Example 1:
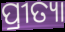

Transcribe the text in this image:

ପ୍ରୀତ୍ୟା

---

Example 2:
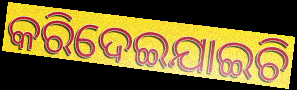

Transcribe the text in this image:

କରିଦେଇଯାଇଚି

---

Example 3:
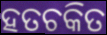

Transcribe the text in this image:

ହତଚକିତ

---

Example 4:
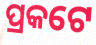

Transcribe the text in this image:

ପ୍ରକଟେ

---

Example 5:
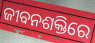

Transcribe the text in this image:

ଜୀବନଶକ୍ତିରେ